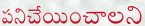
పనిచేయించాలని